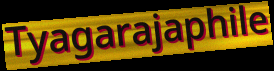
Tyagarajaphile